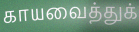
காயவைத்துக்